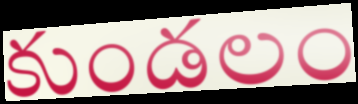
కుండలం